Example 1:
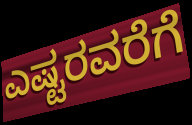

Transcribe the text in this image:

ಎಷ್ಟರವರೆಗೆ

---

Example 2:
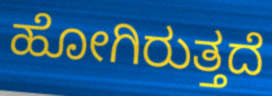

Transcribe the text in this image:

ಹೋಗಿರುತ್ತದೆ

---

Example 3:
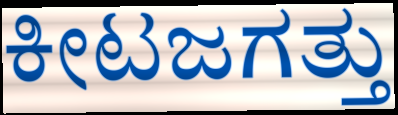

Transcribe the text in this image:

ಕೀಟಜಗತ್ತು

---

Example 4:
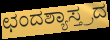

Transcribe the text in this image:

ಛಂದಶ್ಯಾಸ್ತ್ರದ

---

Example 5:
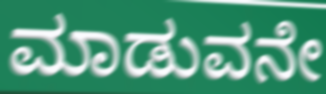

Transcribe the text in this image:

ಮಾಡುವನೇ